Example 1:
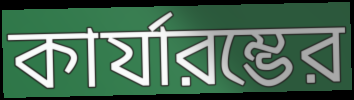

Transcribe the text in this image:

কার্যারম্ভের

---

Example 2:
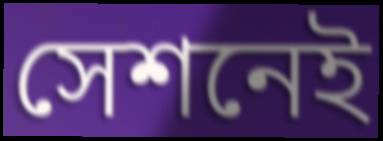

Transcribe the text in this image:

সেশনেই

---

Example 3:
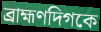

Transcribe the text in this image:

ব্রাহ্মণদিগকে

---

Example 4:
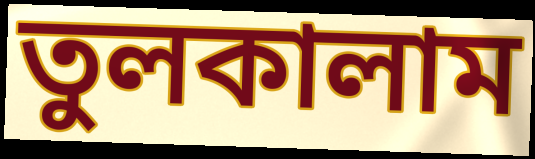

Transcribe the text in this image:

তুলকালাম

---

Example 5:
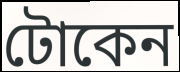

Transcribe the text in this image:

টোকেন